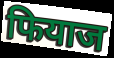
फियाज